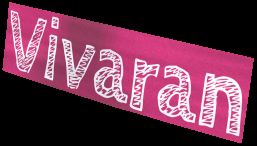
Vivaran